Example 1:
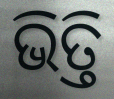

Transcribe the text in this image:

ଭିତ୍ତି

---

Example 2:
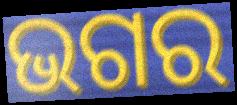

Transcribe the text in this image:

ଭଗର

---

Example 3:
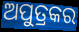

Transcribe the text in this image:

ଅପୁତ୍ରକର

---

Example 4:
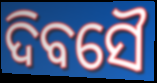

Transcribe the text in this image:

ଦିବସୈ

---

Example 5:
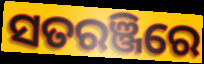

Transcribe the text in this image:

ସତରଞ୍ଜିରେ